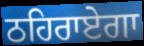
ਠਹਿਰਾਏਗਾ